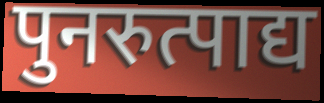
पुनरुत्पाद्य